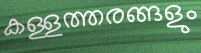
കള്ളത്തരങ്ങളും